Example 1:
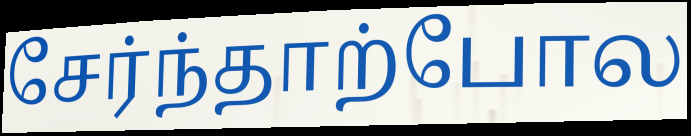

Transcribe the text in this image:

சேர்ந்தாற்போல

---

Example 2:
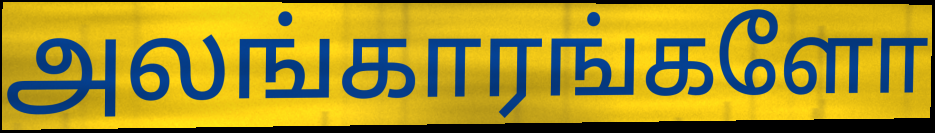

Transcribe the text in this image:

அலங்காரங்களோ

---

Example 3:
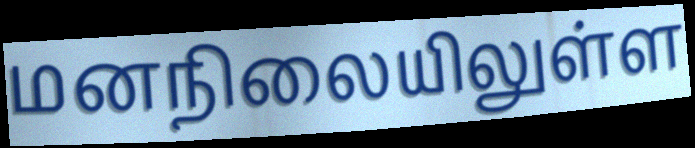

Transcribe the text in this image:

மனநிலையிலுள்ள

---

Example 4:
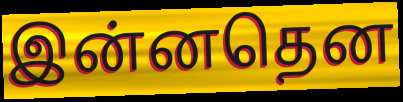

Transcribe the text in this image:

இன்னதென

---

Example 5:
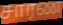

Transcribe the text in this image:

சாரண